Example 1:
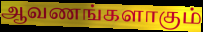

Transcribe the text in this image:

ஆவணங்களாகும்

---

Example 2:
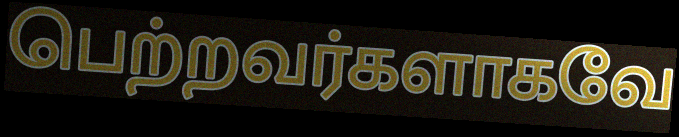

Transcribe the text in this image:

பெற்றவர்களாகவே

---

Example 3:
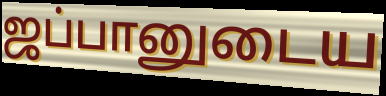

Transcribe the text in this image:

ஜப்பானுடைய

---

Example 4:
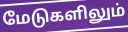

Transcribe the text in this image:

மேடுகளிலும்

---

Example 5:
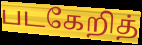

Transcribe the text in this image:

படகேறித்